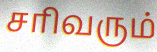
சரிவரும்